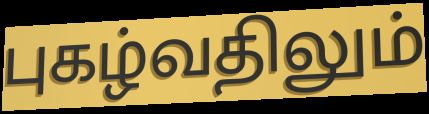
புகழ்வதிலும்